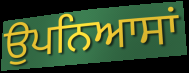
ਉਪਨਿਆਸਾਂ